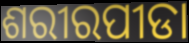
ଶରୀରପୀଡା